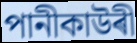
পানীকাউৰী